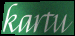
kartu